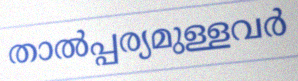
താൽപ്പര്യമുള്ളവർ